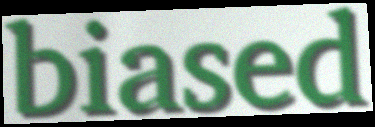
biased